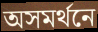
অসমর্থনে